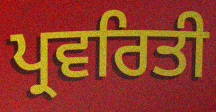
ਪ੍ਰਵਰਿਤੀ